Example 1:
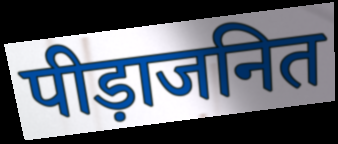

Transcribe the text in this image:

पीड़ाजनित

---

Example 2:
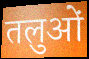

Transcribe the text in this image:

तलुओं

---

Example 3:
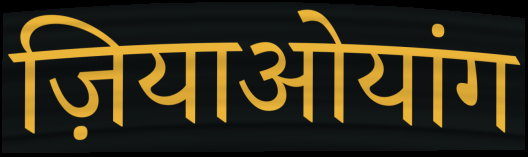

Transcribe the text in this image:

ज़ियाओयांग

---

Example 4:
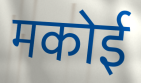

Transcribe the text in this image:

मकोई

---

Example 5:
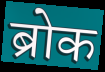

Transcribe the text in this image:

ब्रोक